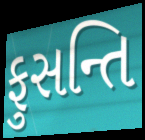
ફુસન્તિ